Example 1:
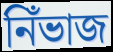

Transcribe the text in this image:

নিঁভাজ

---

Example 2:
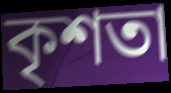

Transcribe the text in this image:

কৃশতা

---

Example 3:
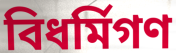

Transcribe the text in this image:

বিধর্মিগণ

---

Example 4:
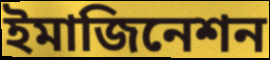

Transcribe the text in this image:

ইমাজিনেশন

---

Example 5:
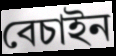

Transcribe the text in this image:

বেচাইন